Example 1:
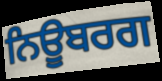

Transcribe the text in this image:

ਨਿਊਬਰਗ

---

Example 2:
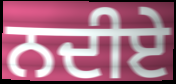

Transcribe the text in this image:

ਨਦੀਏ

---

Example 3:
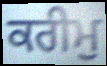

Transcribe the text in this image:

ਕਰੀਮੁ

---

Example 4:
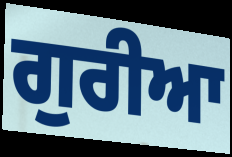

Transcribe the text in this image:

ਗੁਰੀਆ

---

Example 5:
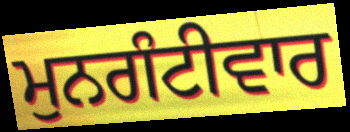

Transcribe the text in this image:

ਮੁਨਗੰਟੀਵਾਰ